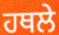
ਹਥਲੇ